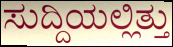
ಸುದ್ದಿಯಲ್ಲಿತ್ತು